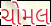
ચોમલ